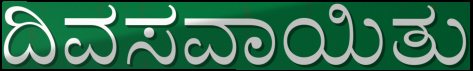
ದಿವಸವಾಯಿತು